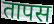
तापस